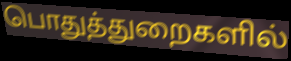
பொதுத்துறைகளில்